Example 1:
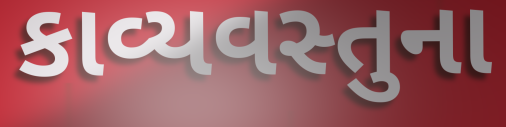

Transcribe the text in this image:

કાવ્યવસ્તુના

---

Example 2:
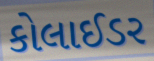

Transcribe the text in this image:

કોલાઈડર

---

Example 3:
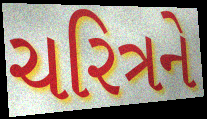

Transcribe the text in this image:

ચરિત્રને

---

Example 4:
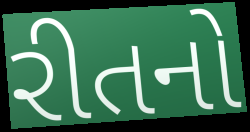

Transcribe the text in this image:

રીતનો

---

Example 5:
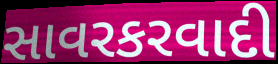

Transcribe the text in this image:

સાવરકરવાદી